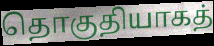
தொகுதியாகத்